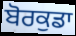
ਬੋਰਕੁਡਾ